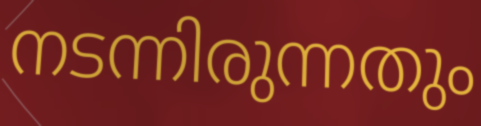
നടന്നിരുന്നതും